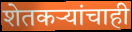
शेतकऱ्यांचाही